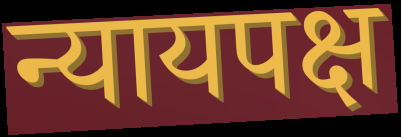
न्यायपक्ष